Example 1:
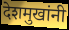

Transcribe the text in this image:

देशमुखांनी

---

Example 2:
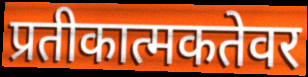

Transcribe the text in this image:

प्रतीकात्मकतेवर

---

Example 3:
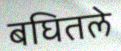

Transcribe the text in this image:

बघितले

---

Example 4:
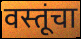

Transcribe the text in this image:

वस्तूंचा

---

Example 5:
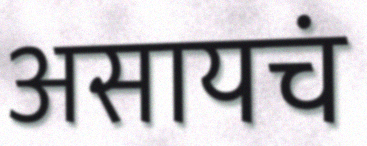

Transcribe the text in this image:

असायचं